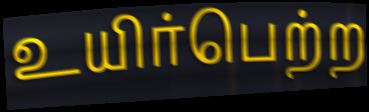
உயிர்பெற்ற